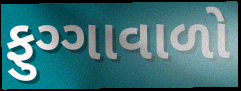
ફુગ્ગાવાળો